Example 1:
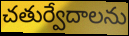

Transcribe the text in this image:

చతుర్వేదాలను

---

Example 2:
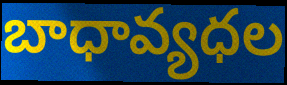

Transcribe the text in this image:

బాధావ్యధల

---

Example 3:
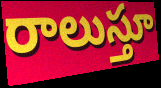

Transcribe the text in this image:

రాలుస్తూ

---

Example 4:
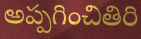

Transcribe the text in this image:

అప్పగించితిరి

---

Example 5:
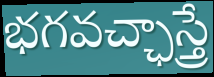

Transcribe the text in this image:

భగవచ్ఛాస్త్రే